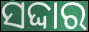
ସଦ୍ଦାର